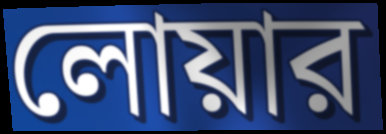
লোয়ার